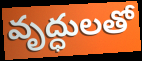
వృద్ధులతో